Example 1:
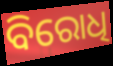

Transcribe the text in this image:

ବିରୋଧି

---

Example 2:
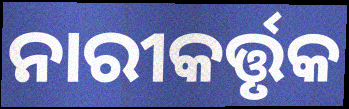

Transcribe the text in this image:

ନାରୀକର୍ତ୍ତୃକ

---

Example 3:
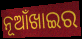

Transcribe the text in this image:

ନୂଆଁଖାଇର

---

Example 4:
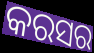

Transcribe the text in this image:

କରସର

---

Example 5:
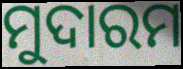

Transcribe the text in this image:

ମୁଦାରମ